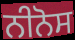
ਨੀਨੋਸ